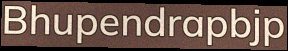
Bhupendrapbjp